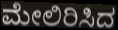
ಮೇಲಿರಿಸಿದ